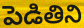
పెడితిని